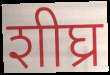
शीघ्र